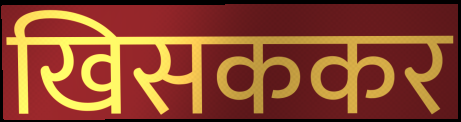
खिसककर